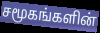
சமூகங்களின்